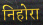
निहोरा